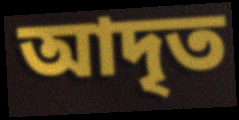
আদৃত